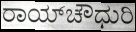
ರಾಯ್‌ಚೌಧುರಿ